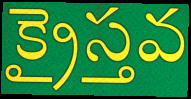
క్రైస్తవ